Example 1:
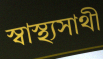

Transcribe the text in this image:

স্বাস্থ্যসাথী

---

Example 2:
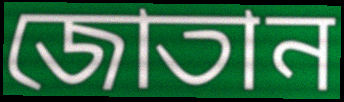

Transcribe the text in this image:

জোতান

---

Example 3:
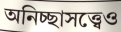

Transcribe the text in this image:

অনিচ্ছাসত্ত্বেও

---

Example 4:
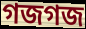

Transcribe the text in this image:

গজগজ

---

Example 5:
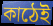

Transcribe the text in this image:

কাঠেই